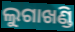
ଲୁଗାଖଣ୍ଡି